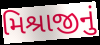
મિશ્રાજીનું